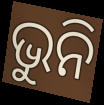
ଭୁନି